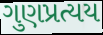
ગુણપ્રત્યય